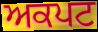
ਅਕਪਟ